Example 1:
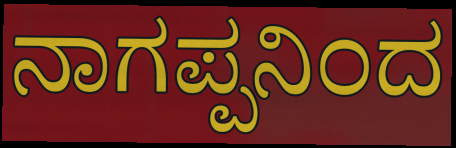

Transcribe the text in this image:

ನಾಗಪ್ಪನಿಂದ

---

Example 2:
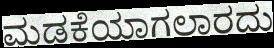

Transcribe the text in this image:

ಮಡಕೆಯಾಗಲಾರದು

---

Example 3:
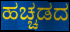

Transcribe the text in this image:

ಹಚ್ಚಡದ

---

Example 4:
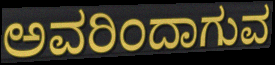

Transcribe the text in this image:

ಅವರಿಂದಾಗುವ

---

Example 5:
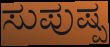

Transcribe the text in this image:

ಸುಪುಷ್ಪ